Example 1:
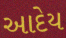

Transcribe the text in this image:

આદેય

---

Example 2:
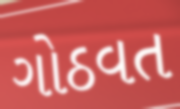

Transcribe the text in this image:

ગોઠવત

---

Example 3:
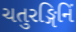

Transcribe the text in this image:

ચતુરઙ્ગિનિં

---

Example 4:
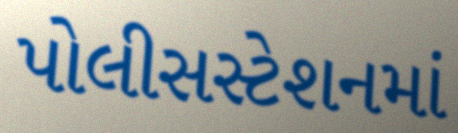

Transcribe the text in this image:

પોલીસસ્ટેશનમાં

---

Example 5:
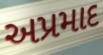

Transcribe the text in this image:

અપ્રમાદ